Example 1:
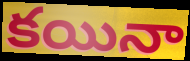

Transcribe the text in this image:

కయినా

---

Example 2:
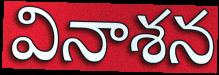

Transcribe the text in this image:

వినాశన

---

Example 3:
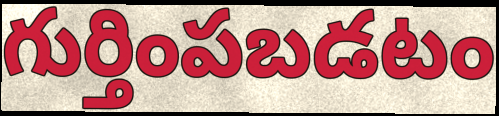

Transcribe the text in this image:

గుర్తింపబడటం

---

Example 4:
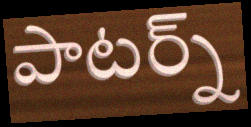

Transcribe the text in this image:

పాటర్న్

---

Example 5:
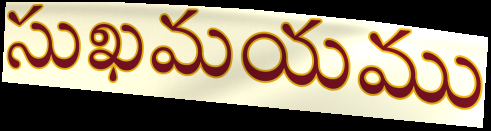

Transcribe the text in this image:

సుఖమయము